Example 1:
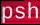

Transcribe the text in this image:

psh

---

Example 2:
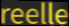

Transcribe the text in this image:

reelle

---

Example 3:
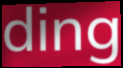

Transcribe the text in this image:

ding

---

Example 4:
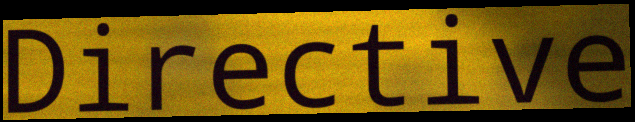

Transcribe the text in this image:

Directive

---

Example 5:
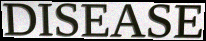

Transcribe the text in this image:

DISEASE